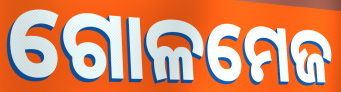
ଗୋଳମେଜ